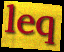
leq